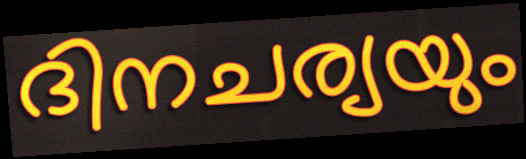
ദിനചര്യയും